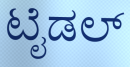
ಟೈಡಲ್